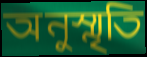
অনুস্মৃতি